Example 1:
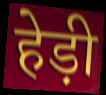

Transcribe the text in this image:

हेड़ी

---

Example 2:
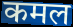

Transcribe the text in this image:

कमल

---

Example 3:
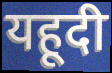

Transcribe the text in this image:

यहूदी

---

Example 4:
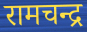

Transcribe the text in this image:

रामचन्द्र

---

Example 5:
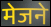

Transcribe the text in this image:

मेजने